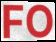
FO